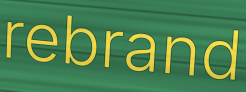
rebrand